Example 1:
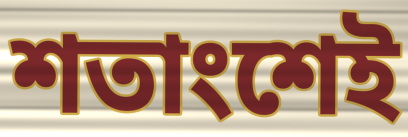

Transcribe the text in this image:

শতাংশেই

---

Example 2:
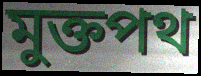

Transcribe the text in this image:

মুক্তপথ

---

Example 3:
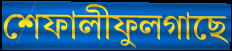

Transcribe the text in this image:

শেফালীফুলগাছে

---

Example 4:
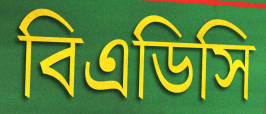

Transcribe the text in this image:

বিএডিসি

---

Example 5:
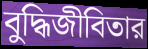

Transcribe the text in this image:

বুদ্ধিজীবিতার